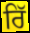
ਰਿੱ